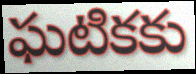
ఘటికకు